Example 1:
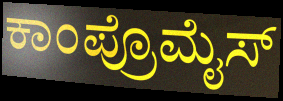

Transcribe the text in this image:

ಕಾಂಪ್ರೊಮೈಸ್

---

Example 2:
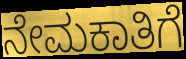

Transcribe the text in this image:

ನೇಮಕಾತಿಗೆ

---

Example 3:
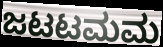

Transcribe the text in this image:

ಜಟಟಮಮ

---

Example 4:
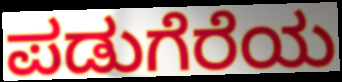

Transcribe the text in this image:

ಪಡುಗೆರೆಯ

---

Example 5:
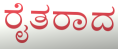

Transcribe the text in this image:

ರೈತರಾದ